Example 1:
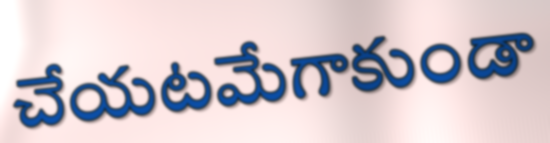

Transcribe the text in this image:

చేయటమేగాకుండా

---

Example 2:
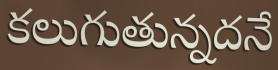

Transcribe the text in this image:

కలుగుతున్నదనే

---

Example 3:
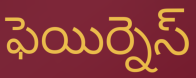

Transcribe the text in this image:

ఫెయిర్నెస్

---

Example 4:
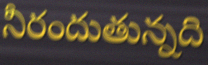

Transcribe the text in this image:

నీరందుతున్నది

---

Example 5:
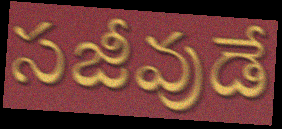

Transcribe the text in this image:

సజీవుడే